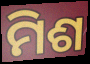
ମିଶ